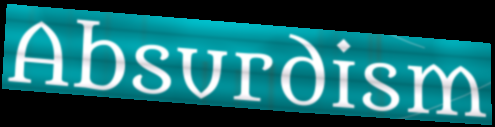
Absurdism